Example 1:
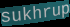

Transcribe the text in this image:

sukhrup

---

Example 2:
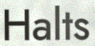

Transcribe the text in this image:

Halts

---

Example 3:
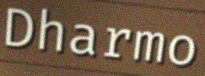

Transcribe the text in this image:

Dharmo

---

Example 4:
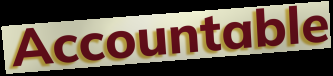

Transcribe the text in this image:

Accountable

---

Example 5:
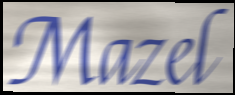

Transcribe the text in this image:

Mazel